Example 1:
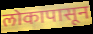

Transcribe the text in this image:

लोकापासून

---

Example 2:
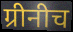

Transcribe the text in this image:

ग्रीनीच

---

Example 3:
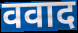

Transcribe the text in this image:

ववाद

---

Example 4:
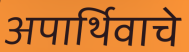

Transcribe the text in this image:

अपार्थिवाचे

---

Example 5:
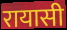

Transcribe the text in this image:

रायासी